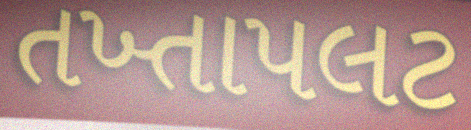
તખ્તાપલટ